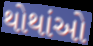
થોથાંઓ